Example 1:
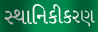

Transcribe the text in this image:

સ્થાનિકીકરણ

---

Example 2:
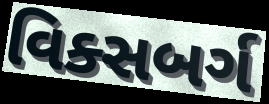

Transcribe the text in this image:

વિક્સબર્ગ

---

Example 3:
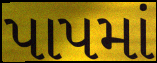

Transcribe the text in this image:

પાપમાં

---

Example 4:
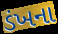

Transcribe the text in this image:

ડંખના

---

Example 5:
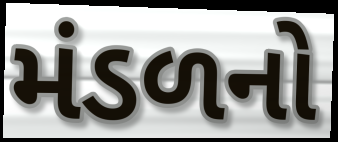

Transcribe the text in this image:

મંડળનો